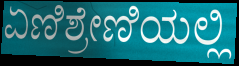
ಏಣಿಶ್ರೇಣಿಯಲ್ಲಿ